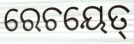
ରେଚୟେତ୍